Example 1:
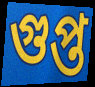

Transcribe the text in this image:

গুপ্ত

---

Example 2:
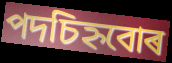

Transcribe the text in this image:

পদচিহ্নবোৰ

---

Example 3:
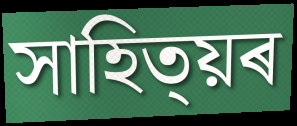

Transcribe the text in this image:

সাহিত্য়ৰ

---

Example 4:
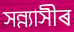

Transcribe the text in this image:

সন্ন্যাসীৰ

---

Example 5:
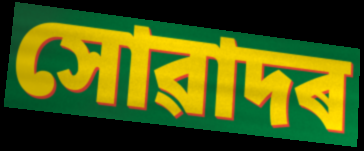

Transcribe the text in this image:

সোৱাদৰ